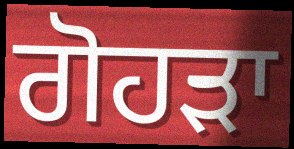
ਗੋਹੜਾ